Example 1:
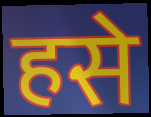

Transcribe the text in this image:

हसे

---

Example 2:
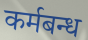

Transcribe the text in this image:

कर्मबन्ध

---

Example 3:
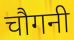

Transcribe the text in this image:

चौगनी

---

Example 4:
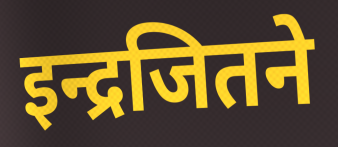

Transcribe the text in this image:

इन्द्रजितने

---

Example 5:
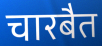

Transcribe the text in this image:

चारबैत